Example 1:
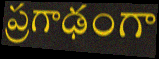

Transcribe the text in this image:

ప్రగాఢంగా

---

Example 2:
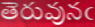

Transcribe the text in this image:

తెరువునఁ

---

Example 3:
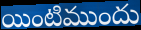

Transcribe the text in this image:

యింటిముందు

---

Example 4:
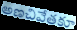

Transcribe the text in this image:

అణచివేతకూ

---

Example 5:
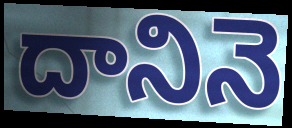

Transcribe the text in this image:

దానినె